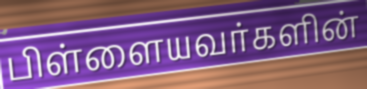
பிள்ளையவர்களின்